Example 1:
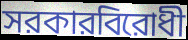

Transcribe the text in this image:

সরকারবিরোধী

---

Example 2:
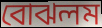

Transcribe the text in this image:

বোঝলম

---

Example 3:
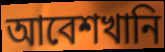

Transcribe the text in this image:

আবেশখানি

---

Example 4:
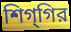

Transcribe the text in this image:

শিগ্‌গির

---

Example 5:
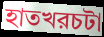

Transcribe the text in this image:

হাতখরচটা